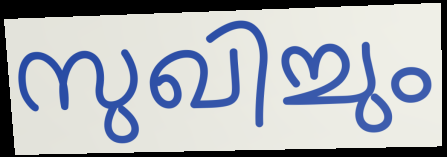
സുഖിച്ചും